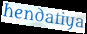
hendatiya